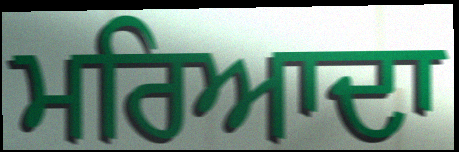
ਮਰਿਆਦਾ